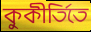
কুকীর্তিতে